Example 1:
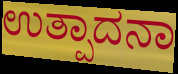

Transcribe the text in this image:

ಉತ್ಪಾದನಾ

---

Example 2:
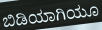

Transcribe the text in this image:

ಬಿಡಿಯಾಗಿಯೂ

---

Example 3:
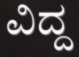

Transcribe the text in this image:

ವಿದ್ದ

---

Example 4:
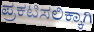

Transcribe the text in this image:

ಪ್ರಕಟಿಸಲಿಕ್ಕಾಗಿ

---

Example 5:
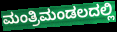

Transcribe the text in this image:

ಮಂತ್ರಿಮಂಡಲದಲ್ಲಿ